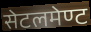
सेटलमेण्ट